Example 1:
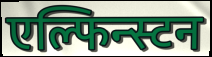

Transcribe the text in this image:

एल्फिन्स्टन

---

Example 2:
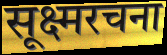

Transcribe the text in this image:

सूक्ष्मरचना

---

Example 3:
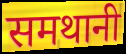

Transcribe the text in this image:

समथानी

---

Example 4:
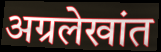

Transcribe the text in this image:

अग्रलेखांत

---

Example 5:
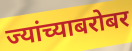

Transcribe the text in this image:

ज्यांच्याबरोबर